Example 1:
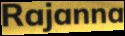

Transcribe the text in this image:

Rajanna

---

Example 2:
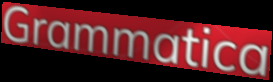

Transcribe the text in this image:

Grammatica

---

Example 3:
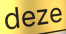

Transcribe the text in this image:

deze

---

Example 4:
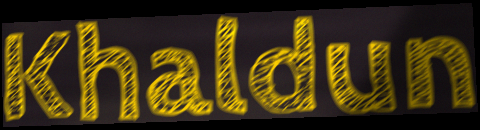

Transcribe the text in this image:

Khaldun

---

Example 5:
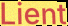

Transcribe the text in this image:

Lient